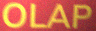
OLAP